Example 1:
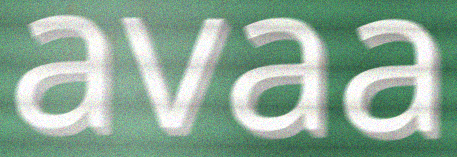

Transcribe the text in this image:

avaa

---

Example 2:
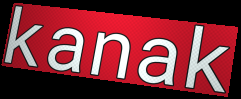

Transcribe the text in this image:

kanak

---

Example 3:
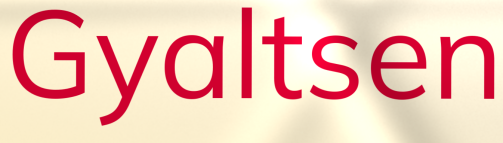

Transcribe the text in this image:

Gyaltsen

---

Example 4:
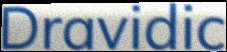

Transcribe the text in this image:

Dravidic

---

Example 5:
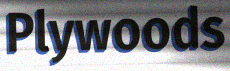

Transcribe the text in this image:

Plywoods